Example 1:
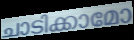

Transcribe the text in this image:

ചാടിക്കാമോ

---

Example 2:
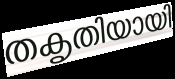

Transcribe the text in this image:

തകൃതിയായി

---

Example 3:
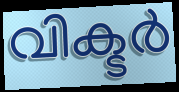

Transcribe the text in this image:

വിക്ടർ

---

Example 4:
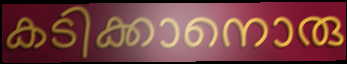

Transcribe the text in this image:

കടിക്കാനൊരു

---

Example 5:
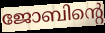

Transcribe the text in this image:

ജോബിന്റെ